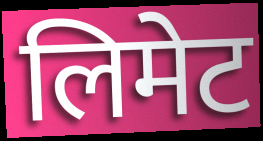
लिमेट